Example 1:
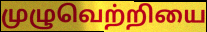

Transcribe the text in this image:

முழுவெற்றியை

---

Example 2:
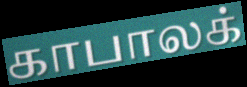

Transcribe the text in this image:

காபாலக்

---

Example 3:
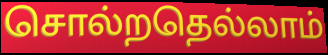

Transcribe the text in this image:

சொல்றதெல்லாம்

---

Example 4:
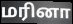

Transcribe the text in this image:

மரினா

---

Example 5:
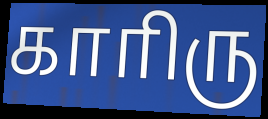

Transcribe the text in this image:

காரிரு